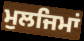
ਮੁਲਜਿਮਾਂ